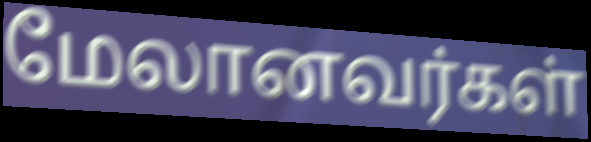
மேலானவர்கள்